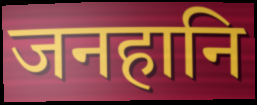
जनहानि